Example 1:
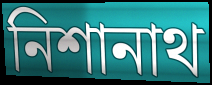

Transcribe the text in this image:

নিশানাথ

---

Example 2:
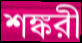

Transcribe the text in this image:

শঙ্করী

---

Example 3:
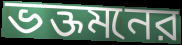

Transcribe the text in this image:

ভক্তমনের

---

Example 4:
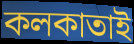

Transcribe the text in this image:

কলকাতাই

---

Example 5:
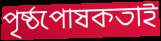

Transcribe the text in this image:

পৃষ্ঠপোষকতাই